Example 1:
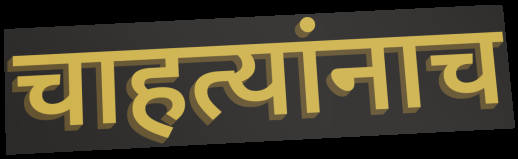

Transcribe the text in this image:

चाहत्यांनाच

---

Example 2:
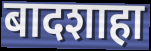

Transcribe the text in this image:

बादशाहा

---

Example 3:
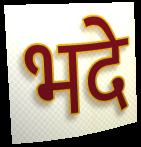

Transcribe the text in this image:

भदे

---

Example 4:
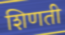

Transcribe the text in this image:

शिणती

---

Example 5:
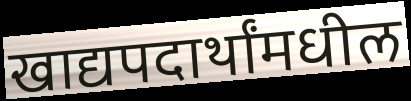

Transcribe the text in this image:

खाद्यपदार्थांमधील